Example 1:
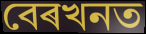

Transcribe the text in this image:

বেৰখনত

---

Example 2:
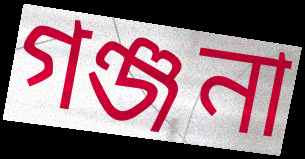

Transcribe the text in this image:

গঞ্জনা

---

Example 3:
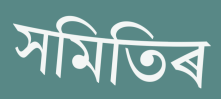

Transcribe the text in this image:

সমিতিৰ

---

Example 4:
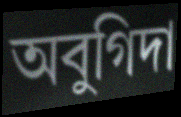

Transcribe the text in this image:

অবুগিদা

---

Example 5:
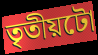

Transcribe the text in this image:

তৃতীয়টো